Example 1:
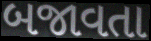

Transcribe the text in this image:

બજાવતા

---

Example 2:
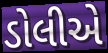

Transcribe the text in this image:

ડોલીએ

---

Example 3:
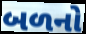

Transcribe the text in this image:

બળનો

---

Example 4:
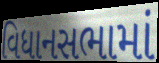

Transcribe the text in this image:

વિધાનસભામાં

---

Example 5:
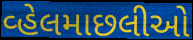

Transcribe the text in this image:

વ્હેલમાછલીઓ